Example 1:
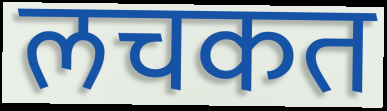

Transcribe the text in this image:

लचकत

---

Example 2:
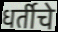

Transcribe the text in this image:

धर्तीचे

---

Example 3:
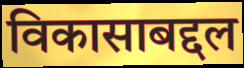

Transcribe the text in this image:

विकासाबद्दल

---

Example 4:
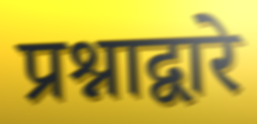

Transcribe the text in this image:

प्रश्नाद्वारे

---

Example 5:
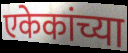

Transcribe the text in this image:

एकेकांच्या